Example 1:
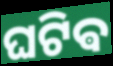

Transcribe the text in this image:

ଘଟିଵ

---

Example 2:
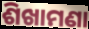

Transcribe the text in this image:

ଶିଖାମଣା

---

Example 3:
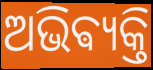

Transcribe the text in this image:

ଅଭିଵ୍ୟକ୍ତି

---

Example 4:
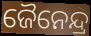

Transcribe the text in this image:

ଜୈନେନ୍ଦ୍ର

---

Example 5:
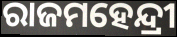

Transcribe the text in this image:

ରାଜମହେନ୍ଦ୍ରୀ